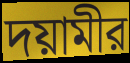
দয়ামীর